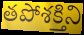
తపోశక్తిని